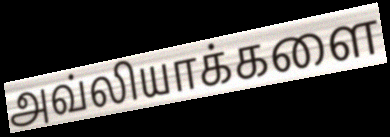
அவ்லியாக்களை